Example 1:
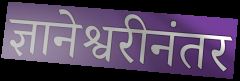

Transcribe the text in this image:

ज्ञानेश्वरीनंतर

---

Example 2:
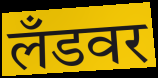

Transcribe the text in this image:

लँडवर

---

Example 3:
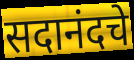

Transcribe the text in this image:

सदानंदचे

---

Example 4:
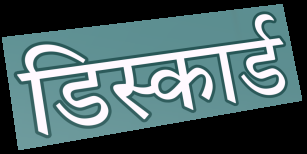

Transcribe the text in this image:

डिस्कार्ड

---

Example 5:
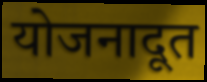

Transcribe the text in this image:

योजनादूत